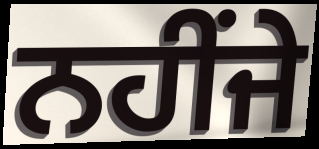
ਨਹੀਂਜੇ